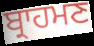
ਬ੍ਰਾਹਮਣ